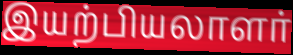
இயற்பியலாளர்